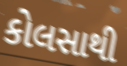
કોલસાથી